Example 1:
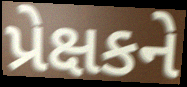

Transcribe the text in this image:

પ્રેક્ષકને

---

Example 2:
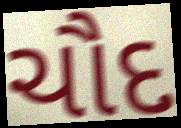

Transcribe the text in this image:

ચૌદ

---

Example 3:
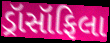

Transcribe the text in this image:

ડ્રૉસૉફિલા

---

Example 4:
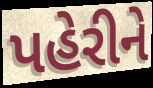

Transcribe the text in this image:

પહેરીને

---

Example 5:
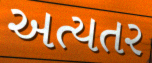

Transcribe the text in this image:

અત્યતર